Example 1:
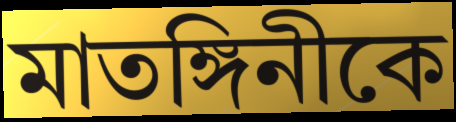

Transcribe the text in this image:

মাতঙ্গিনীকে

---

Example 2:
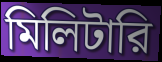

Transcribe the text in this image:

মিলিটারি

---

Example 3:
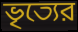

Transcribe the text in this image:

ভৃত্যের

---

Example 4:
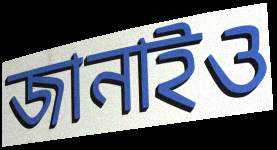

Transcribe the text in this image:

জানাইও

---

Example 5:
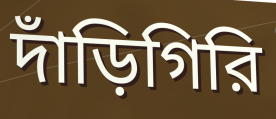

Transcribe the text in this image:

দাঁড়িগিরি